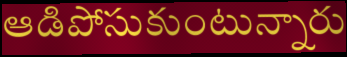
ఆడిపోసుకుంటున్నారు